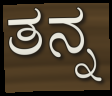
ತನ್ನ